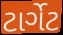
ટાર્ગેટ